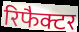
रिफैक्टर